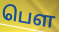
பெள